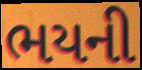
ભયની